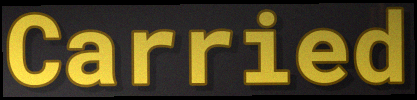
Carried